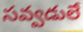
సవ్వడులే